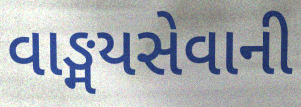
વાઙ્મયસેવાની